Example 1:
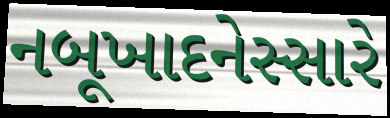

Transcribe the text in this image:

નબૂખાદનેસ્સારે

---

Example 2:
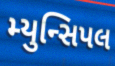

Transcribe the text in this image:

મ્યુન્સિપલ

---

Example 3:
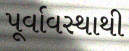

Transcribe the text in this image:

પૂર્વાવસ્થાથી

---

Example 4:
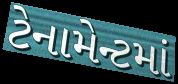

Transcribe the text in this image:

ટેનામેન્ટમાં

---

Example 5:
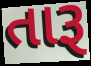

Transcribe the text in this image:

તારૂ